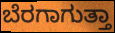
ಬೆರಗಾಗುತ್ತಾ